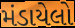
મંડાયેલો